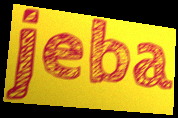
jeba